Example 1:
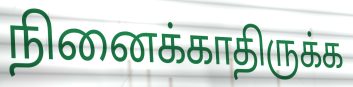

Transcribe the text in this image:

நினைக்காதிருக்க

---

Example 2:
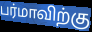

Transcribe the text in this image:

பர்மாவிற்கு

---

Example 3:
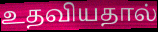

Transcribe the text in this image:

உதவியதால்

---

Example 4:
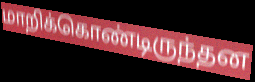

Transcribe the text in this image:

மாறிக்கொண்டிருந்தன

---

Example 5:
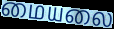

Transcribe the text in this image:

மையலை